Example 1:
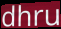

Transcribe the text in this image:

dhru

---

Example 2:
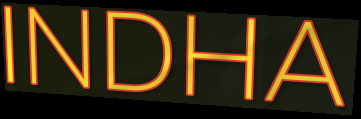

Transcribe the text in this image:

INDHA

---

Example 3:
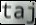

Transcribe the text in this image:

taj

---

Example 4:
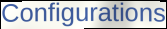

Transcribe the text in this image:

Configurations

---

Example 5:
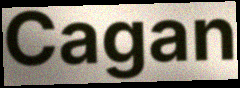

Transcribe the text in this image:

Cagan